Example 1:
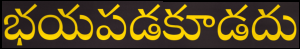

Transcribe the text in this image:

భయపడకూడదు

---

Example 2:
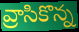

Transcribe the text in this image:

వ్రాసికొన్న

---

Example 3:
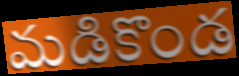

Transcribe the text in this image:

మడికొండ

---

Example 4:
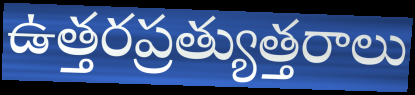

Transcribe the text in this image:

ఉత్తరప్రత్యుత్తరాలు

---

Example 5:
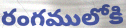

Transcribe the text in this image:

రంగములోకి